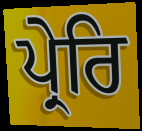
ਪ੍ਰੇਰਿ